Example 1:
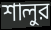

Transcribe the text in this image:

শালুর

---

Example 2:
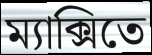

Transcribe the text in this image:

ম্যাক্সিতে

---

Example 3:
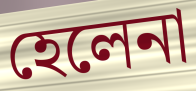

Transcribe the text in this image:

হেলেনা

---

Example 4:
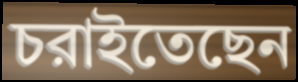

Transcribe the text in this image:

চরাইতেছেন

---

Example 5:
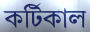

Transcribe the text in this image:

কর্টিকাল